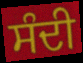
ਸੰਦੀ